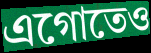
এগোতেও